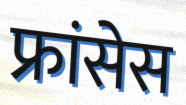
फ्रांसेस